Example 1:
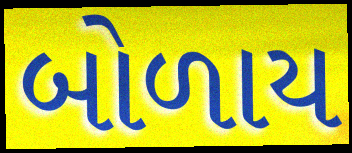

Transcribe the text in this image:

બોળાય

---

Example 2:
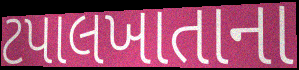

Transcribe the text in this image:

ટપાલખાતાના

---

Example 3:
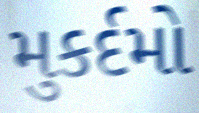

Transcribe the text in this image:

મુકર્દમો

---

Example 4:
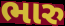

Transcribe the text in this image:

ભારુ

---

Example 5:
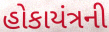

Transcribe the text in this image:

હોકાયંત્રની